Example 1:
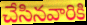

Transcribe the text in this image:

చేసినవారికి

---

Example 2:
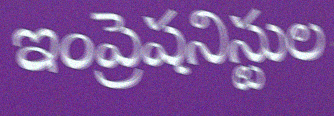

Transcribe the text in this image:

ఇంప్రెషనిస్టుల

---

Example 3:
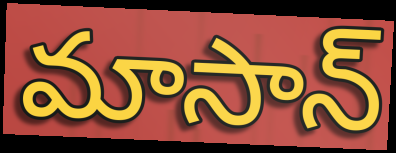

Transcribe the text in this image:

మాసాన్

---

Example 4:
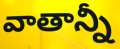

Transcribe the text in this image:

వాతాన్నీ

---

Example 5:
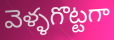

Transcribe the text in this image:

వెళ్ళగొట్టగా